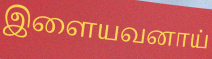
இளையவனாய்